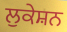
ਲੁਕੇਸ਼ਨ